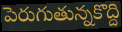
పెరుగుతున్నకొద్ది